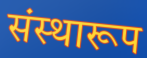
संस्थारूप